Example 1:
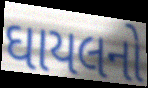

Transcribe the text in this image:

ઘાયલનો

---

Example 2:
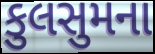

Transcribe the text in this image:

કુલસુમના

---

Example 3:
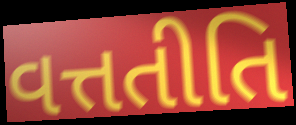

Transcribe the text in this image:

વત્તતીતિ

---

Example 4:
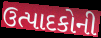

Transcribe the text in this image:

ઉત્પાદકોની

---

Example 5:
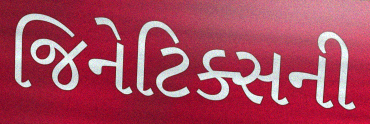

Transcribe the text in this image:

જિનેટિક્સની